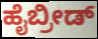
ಹೈಬ್ರೀಡ್